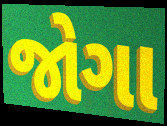
જોગા